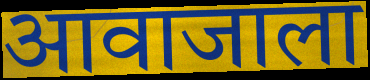
आवाजाला